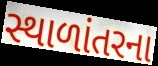
સ્થાળાંતરના